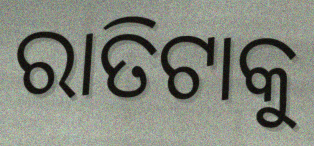
ରାତିଟାକୁ